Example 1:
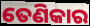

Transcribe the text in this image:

ତେଣିକାର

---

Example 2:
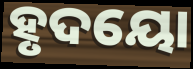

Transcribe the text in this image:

ହୃଦୟୋ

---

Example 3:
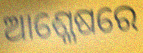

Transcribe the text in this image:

ଆଶ୍ଳେଷରେ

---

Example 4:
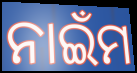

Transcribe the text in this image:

ନାଇଁମ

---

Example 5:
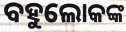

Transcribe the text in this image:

ବହୁଲୋକଙ୍କ